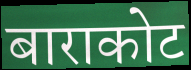
बाराकोट